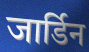
जार्डिन